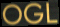
OGL